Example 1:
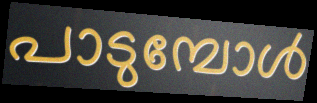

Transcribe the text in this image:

പാടുമ്പോൾ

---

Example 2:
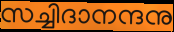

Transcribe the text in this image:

സച്ചിദാനന്ദനു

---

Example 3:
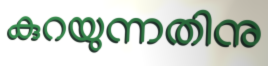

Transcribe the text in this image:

കുറയുന്നതിനു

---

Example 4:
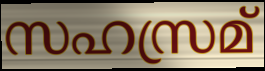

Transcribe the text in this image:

സഹസ്രമ്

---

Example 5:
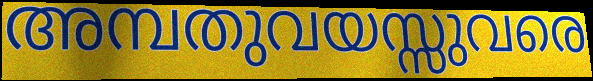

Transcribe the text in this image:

അമ്പതുവയസ്സുവരെ